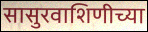
सासुरवाशिणीच्या